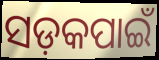
ସଡ଼କପାଇଁ